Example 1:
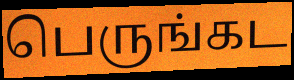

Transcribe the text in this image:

பெருங்கட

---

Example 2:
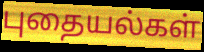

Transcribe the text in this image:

புதையல்கள்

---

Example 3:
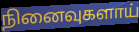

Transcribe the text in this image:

நினைவுகளாய்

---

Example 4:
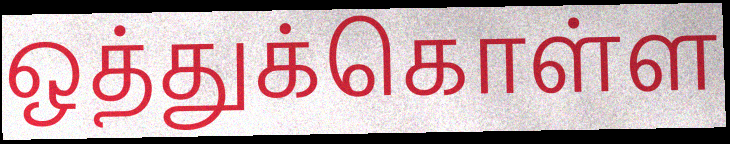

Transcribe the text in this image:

ஒத்துக்கொள்ள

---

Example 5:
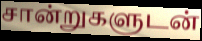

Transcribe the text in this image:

சான்றுகளுடன்